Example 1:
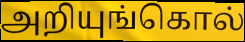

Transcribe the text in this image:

அறியுங்கொல்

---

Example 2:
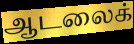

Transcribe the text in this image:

ஆடலைக்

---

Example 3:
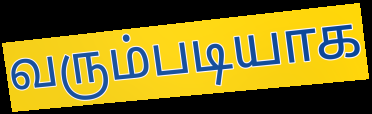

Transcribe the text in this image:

வரும்படியாக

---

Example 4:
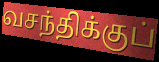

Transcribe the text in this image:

வசந்திக்குப்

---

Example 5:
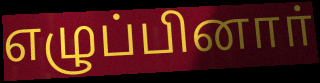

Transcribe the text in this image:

எழுப்பினார்